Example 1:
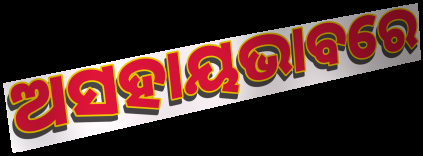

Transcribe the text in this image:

ଅସହାୟଭାବରେ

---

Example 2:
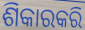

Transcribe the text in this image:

ଶିକାରକରି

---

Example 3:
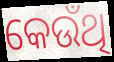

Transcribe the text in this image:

କେଉଁଥି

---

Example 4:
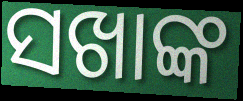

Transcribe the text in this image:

ସଖାଙ୍କ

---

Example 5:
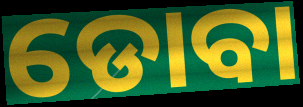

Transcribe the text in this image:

ଡୋବା